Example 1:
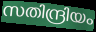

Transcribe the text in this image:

സതിന്ദ്രിയം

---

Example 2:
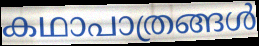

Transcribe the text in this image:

കഥാപാത്രങ്ങൾ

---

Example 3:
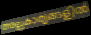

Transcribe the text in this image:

അല്പകാര്യങ്ങളിൽ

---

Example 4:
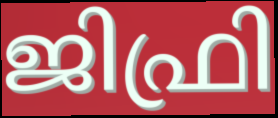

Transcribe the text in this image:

ജിഫ്രി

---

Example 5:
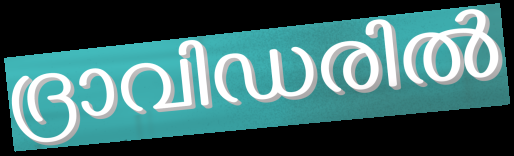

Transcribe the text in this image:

ദ്രാവിഡരിൽ